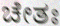
ಚೇತಃ